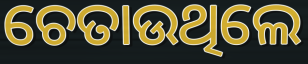
ଚେତାଉଥିଲେ